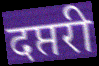
दप्तरी